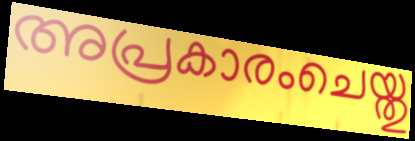
അപ്രകാരംചെയ്തു